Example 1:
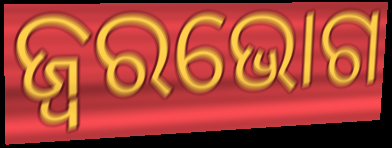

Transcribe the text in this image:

ଜ୍ୱରଭୋଗ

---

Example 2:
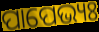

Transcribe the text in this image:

ପାପେଭ୍ୟଃ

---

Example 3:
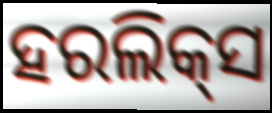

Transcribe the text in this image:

ହରଲିକ୍‌ସ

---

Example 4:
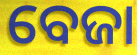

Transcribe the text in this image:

ବେଜା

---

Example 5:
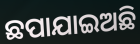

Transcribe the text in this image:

ଛପାଯାଇଅଛି